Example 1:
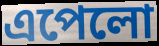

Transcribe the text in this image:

এপেলো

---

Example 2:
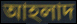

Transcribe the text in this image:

আহলাদ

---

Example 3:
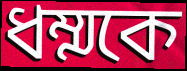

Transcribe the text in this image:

ধম্মকে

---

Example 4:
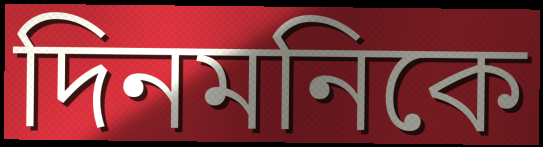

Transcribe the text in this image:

দিনমনিকে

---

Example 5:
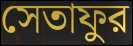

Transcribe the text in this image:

সেতাফুর